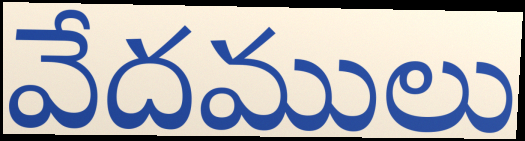
వేదములు